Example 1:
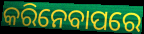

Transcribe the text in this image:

କରିନେବାପରେ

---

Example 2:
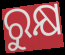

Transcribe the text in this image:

ରୁକ୍ଷ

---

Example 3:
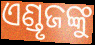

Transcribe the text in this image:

ଏଣ୍ଡୃଜଙ୍କୁ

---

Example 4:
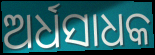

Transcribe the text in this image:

ଅର୍ଧସାଧକ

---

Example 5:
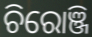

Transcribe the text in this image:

ଚିରୋଞ୍ଜି